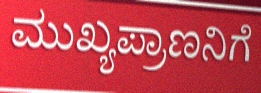
ಮುಖ್ಯಪ್ರಾಣನಿಗೆ